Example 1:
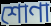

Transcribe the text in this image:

শোণা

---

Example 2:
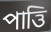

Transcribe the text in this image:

পাত্তি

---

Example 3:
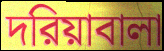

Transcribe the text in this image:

দরিয়াবালা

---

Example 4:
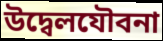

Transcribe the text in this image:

উদ্বেলযৌবনা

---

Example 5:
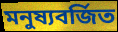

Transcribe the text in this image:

মনুষ্যবর্জিত